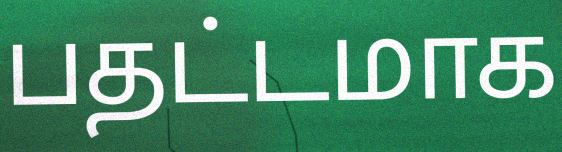
பதட்டமாக